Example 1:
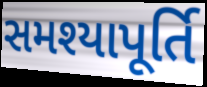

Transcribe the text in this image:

સમશ્યાપૂર્તિ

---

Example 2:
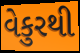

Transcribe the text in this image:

વેકુરથી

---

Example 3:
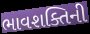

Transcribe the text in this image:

ભાવશક્તિની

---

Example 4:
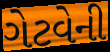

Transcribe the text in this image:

ગેટવેની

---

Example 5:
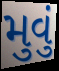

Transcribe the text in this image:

મુવું